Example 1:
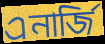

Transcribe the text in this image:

এনার্জি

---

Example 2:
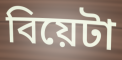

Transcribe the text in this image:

বিয়েটা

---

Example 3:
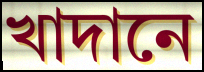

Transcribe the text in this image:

খাদানে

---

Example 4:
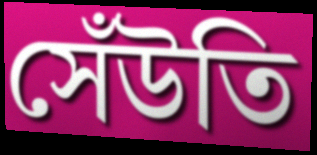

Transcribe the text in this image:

সেঁউতি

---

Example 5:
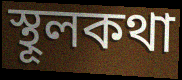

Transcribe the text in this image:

স্থূলকথা